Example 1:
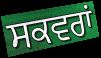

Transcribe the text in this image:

ਸਕਵਰਾਂ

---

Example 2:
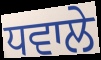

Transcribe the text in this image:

ਧਵਾਲੇ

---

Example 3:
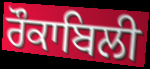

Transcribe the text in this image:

ਰੌਕਾਬਿਲੀ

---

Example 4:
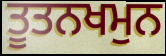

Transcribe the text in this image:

ਤੂਤਨਖਮੁਨ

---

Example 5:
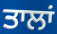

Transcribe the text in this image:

ਤਾਲਾਂ